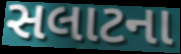
સલાટના